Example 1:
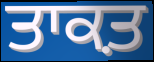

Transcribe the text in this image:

ਤਾਕ਼ਤ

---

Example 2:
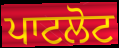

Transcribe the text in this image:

ਪਾਟਲੋਟ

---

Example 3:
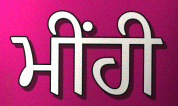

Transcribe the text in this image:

ਮੀਂਹੀ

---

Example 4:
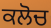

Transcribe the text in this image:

ਕਲੋਚ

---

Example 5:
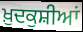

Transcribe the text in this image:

ਖ਼ੁਦਕੁਸ਼ੀਆਂ